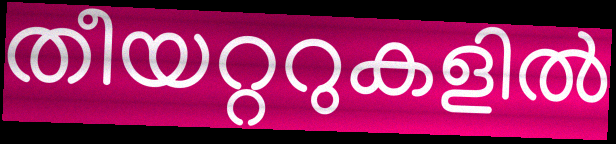
തീയറ്ററുകളിൽ